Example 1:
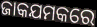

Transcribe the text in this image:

ଜାକଯମକରେ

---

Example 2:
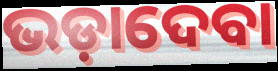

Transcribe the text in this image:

ଭଡ଼ାଦେବା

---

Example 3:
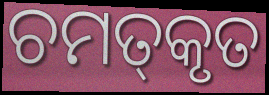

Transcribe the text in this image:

ଚମତ୍‌କୃତ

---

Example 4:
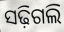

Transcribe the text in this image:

ସଢ଼ିଗଲି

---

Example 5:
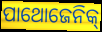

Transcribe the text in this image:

ପାଥୋଜେନିକ୍